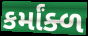
કર્માંક્ળ